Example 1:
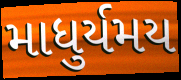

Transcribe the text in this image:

માધુર્યમય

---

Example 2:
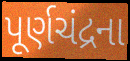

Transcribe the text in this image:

પૂર્ણચંદ્રના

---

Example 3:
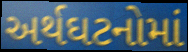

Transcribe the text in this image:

અર્થઘટનોમાં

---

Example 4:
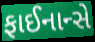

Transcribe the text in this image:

ફાઈનાન્સે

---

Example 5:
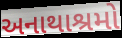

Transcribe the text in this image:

અનાથાશ્રમો